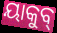
ୟାକୁବ୍